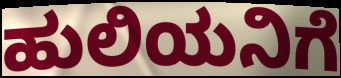
ಹುಲಿಯನಿಗೆ